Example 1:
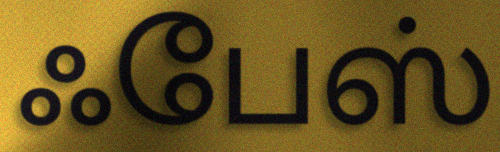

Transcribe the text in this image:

ஃபேஸ்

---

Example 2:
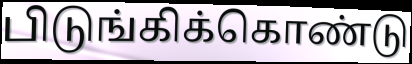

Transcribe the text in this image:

பிடுங்கிக்கொண்டு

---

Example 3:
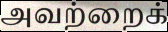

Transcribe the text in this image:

அவற்றைக்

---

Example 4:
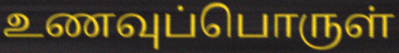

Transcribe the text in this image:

உணவுப்பொருள்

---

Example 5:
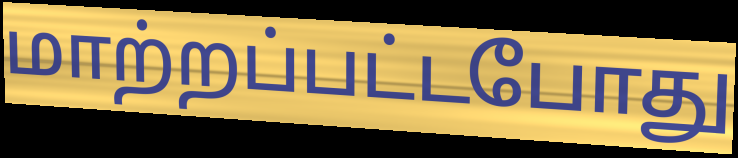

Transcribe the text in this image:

மாற்றப்பட்டபோது